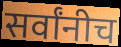
सर्वांनीच